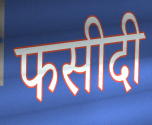
फसीदी